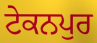
ਟੇਕਨਪੁਰ